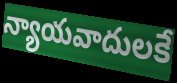
న్యాయవాదులకే